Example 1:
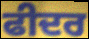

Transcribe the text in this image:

ਫੀਦਰ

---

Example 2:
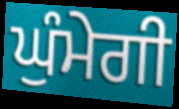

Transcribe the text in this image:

ਘੁੰਮੇਗੀ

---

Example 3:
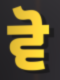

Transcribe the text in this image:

ਵੋ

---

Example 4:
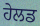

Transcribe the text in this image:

ਹੇਲਡ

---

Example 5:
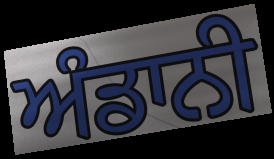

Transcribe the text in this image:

ਅੰਡਾਨੀ